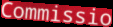
Commissio